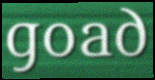
goad